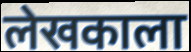
लेखकाला